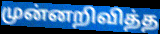
முன்னறிவித்த